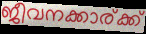
ജീവനക്കാര്ക്ക്